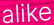
alike